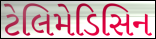
ટેલિમેડિસિન